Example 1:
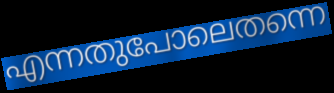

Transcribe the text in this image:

എന്നതുപോലെതന്നെ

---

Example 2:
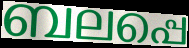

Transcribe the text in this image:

ബലപ്പെ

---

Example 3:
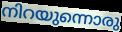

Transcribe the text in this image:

നിറയുന്നൊരു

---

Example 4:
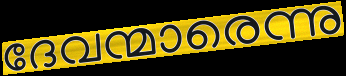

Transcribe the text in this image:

ദേവന്മാരെന്നു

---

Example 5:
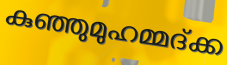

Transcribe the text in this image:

കുഞ്ഞുമുഹമ്മദ്ക്ക